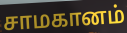
சாமகானம்